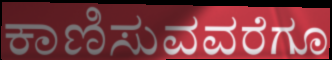
ಕಾಣಿಸುವವರೆಗೂ